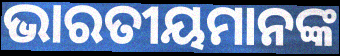
ଭାରତୀୟମାନଙ୍କ